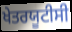
ਖੇਤਰਯੂਟੀਸੀ